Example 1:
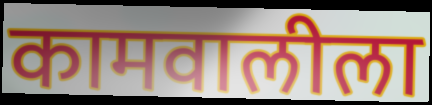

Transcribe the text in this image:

कामवालीला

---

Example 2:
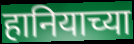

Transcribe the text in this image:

हानियाच्या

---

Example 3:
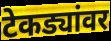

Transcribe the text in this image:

टेकड्यांवर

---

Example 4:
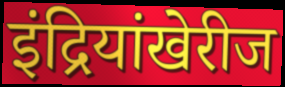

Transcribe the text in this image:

इंद्रियांखेरीज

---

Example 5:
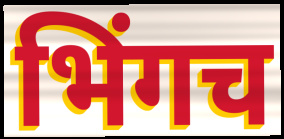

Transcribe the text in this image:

भिंगच